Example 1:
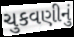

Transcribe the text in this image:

ચુકવણીનું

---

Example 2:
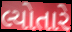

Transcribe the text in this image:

લ્યોતારે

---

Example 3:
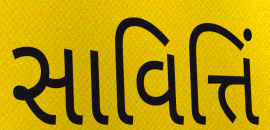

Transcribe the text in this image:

સાવિત્તિં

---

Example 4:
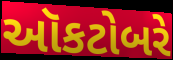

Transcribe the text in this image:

ઑકટોબરે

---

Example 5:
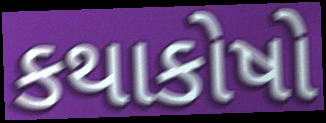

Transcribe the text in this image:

કથાકોષો